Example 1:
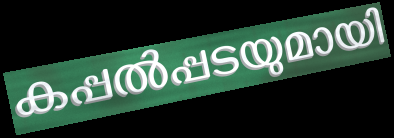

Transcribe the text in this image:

കപ്പൽപ്പടയുമായി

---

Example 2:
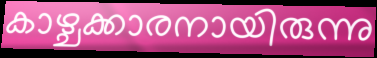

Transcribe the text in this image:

കാഴ്ചക്കാരനായിരുന്നു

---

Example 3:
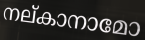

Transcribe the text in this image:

നല്കാനാമോ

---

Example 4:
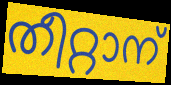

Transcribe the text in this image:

തീറ്റാന്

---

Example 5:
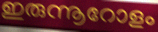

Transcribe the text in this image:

ഇരുന്നൂറോളം